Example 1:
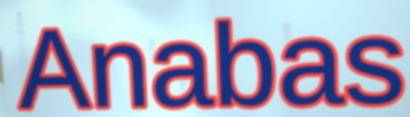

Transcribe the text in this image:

Anabas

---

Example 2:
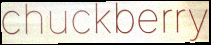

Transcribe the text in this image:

chuckberry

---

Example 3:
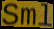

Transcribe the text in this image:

Sml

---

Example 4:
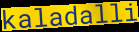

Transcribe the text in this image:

kaladalli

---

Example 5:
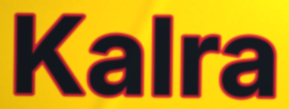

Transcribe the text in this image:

Kalra